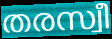
തരസ്വീ